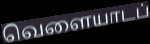
வெளையாடப்